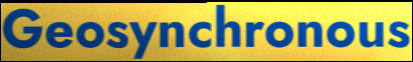
Geosynchronous